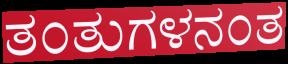
ತಂತುಗಳನಂತ